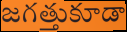
జగత్తుకూడా